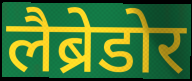
लैब्रेडोर